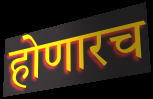
होणारच